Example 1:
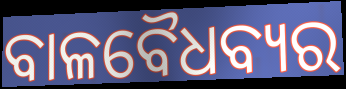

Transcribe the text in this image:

ବାଳବୈଧବ୍ୟର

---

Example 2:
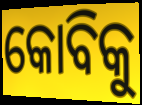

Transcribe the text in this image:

କୋବିକୁ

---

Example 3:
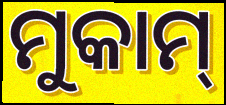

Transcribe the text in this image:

ମୁକାମ୍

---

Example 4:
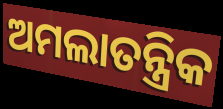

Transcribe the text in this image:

ଅମଲାତନ୍ତ୍ରିକ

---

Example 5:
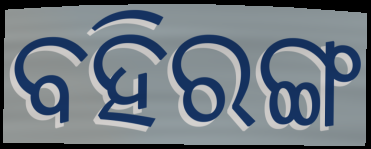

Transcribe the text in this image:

ବହିରଙ୍ଗ